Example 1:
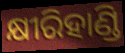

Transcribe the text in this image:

କ୍ଷୀରିହାଣ୍ଡି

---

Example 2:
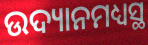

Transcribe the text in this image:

ଉଦ୍ୟାନମଧ୍ୟସ୍ଥ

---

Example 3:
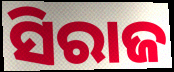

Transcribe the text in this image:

ସିରାଜ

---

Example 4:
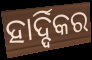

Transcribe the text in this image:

ହାର୍ଦ୍ଦିକର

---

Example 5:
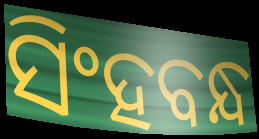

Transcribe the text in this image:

ସିଂହବନ୍ଧ